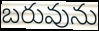
బరువును